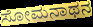
ಸೋಮನಾಥನ